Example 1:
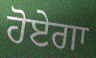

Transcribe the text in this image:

ਹੋਏਗਾ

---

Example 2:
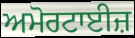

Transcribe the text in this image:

ਅਮੋਰਟਾਈਜ਼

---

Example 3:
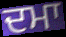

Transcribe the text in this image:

ਦਮਾ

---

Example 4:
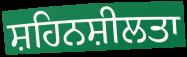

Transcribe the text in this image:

ਸ਼ਹਿਨਸ਼ੀਲਤਾ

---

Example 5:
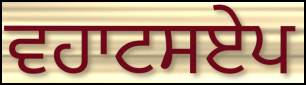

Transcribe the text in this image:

ਵਹਾਟਸਏਪ